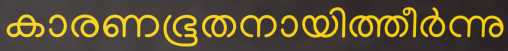
കാരണഭൂതനായിത്തീർന്നു